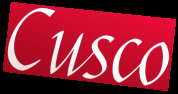
Cusco